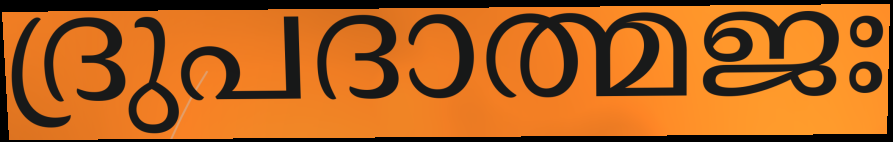
ദ്രുപദാത്മജഃ